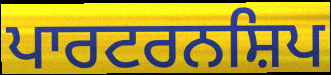
ਪਾਰਟਰਨਸ਼ਿਪ